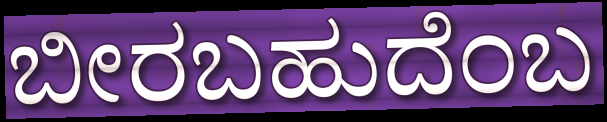
ಬೀರಬಹುದೆಂಬ